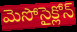
మెసోసైక్లోన్